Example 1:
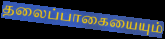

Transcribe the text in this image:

தலைப்பாகையையும்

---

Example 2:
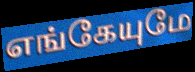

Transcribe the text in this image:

எங்கேயுமே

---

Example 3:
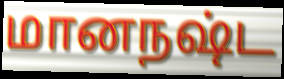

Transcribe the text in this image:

மானநஷ்ட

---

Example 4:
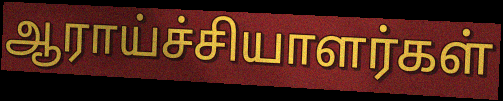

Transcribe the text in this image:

ஆராய்ச்சியாளர்கள்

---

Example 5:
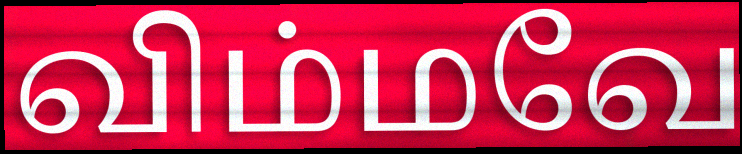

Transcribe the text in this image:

விம்மவே